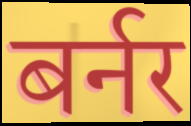
बर्नर